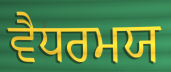
ਵੈਧਰਮਯ